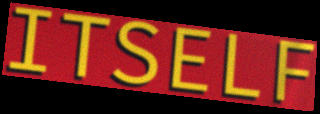
ITSELF